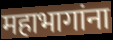
महाभागांना